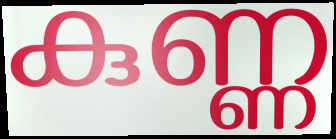
കുണ്ണ